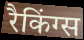
रैकिंग्स